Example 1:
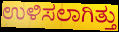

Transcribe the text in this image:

ಉಳಿಸಲಾಗಿತ್ತು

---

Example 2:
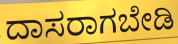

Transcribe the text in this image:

ದಾಸರಾಗಬೇಡಿ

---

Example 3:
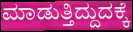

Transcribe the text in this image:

ಮಾಡುತ್ತಿದ್ದುದಕ್ಕೆ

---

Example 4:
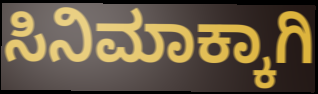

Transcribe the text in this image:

ಸಿನಿಮಾಕ್ಕಾಗಿ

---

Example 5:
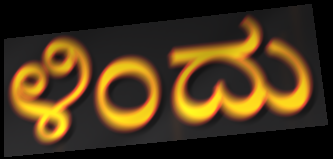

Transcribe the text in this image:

ಳಿಂದು